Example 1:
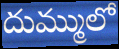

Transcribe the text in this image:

దుమ్ములో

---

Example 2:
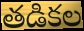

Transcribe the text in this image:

తడికల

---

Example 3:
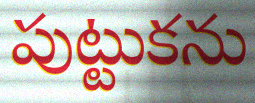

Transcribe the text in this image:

పుట్టుకను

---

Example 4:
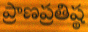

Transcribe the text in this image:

ప్రాణప్రతిష్ఠ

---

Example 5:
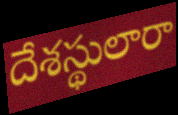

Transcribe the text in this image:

దేశస్థులారా